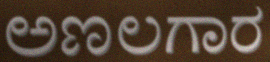
ಅಣಲಗಾರ